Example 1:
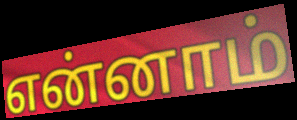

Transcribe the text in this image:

என்னாம்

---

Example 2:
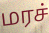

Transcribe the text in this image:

மரச்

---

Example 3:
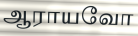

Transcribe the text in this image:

ஆராயவோ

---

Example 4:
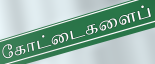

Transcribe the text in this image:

கோட்டைகளைப்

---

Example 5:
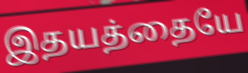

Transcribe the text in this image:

இதயத்தையே